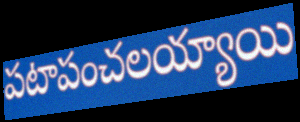
పటాపంచలయ్యాయి